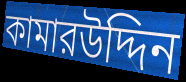
কামারউদ্দিন